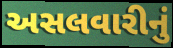
અસલવારીનું